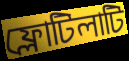
ফ্লোটিলাটি